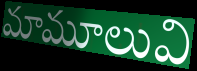
మామూలువి